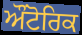
ਔਂਟੋਰਿਕ